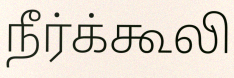
நீர்க்கூலி